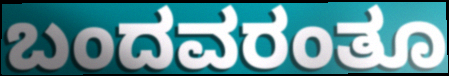
ಬಂದವರಂತೂ